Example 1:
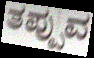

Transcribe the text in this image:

ತಪ್ಪುವ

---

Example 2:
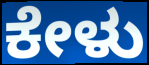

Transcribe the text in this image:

ಕೇಳು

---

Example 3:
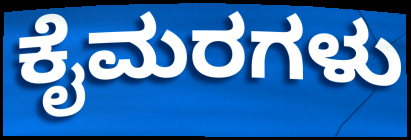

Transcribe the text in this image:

ಕೈಮರಗಳು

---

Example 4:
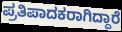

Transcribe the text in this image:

ಪ್ರತಿಪಾದಕರಾಗಿದ್ದಾರೆ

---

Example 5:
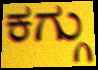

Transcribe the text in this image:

ಕಗ್ಗು